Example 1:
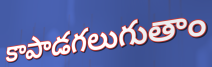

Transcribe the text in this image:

కాపాడగలుగుతాం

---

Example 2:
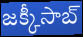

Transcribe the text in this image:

జక్కీసాబ్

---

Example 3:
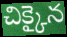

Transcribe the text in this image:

చిక్కైన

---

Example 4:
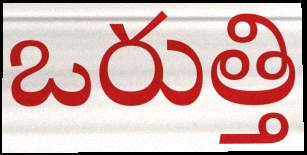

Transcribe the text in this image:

ఒరుత్తి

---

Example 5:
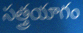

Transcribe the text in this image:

సత్త్రయాగం